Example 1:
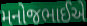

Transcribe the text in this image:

મનોજભાઈએ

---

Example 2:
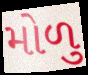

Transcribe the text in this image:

મોળુ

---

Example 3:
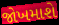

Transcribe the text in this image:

જોખમાશે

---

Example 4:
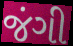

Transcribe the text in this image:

જંગી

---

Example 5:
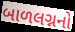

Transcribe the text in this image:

બાળલગ્નનો